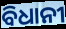
ବିଧାନୀ